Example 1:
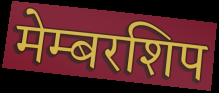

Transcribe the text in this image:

मेम्बरशिप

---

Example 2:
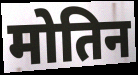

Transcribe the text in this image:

मोतिन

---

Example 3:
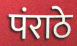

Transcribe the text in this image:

पंराठे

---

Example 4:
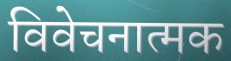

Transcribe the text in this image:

विवेचनात्मक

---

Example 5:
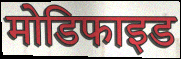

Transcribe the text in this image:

मोडिफाइड